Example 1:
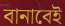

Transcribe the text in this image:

বানাবেই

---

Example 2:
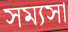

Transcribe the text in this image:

সম্যসা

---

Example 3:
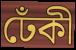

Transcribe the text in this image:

ঢেঁকী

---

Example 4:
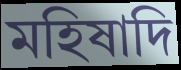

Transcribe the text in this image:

মহিষাদি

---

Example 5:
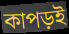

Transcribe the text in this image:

কাপড়ই